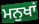
ਮਨੁਖਾਂ